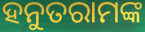
ହନୁତରାମଙ୍କ